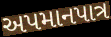
અપમાનપાત્ર